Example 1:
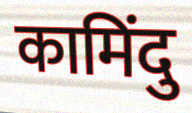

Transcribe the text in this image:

कामिंदु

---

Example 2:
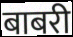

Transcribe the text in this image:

बाबरी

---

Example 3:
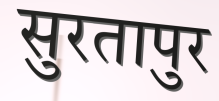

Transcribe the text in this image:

सुरतापुर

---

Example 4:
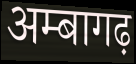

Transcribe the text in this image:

अम्बागढ़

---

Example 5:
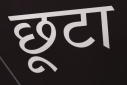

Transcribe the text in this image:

छूटा